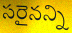
సరైనన్ని